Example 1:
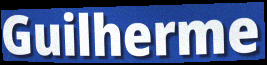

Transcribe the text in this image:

Guilherme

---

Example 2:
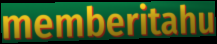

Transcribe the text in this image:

memberitahu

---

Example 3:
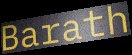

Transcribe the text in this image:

Barath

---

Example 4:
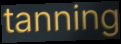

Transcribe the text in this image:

tanning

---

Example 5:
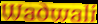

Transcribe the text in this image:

Wadwali